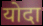
योदा